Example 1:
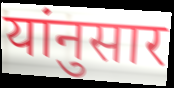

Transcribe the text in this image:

यांनुसार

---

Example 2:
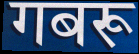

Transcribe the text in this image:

गबरू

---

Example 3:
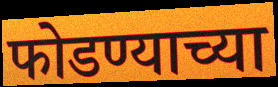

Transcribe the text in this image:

फोडण्याच्या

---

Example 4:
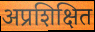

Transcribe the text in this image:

अप्रशिक्षित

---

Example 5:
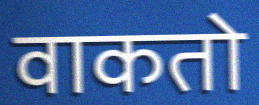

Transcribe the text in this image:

वाकतो